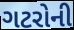
ગટરોની